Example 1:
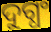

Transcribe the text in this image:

ଦୁଗ୍ଧଂ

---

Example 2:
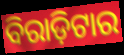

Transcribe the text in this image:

ବିରାଡ଼ିଟାର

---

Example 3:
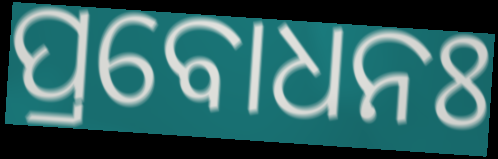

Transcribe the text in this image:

ପ୍ରବୋଧନଃ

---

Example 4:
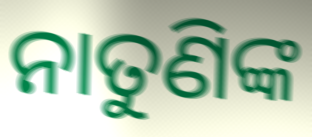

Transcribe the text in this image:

ନାତୁଣିଙ୍କ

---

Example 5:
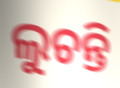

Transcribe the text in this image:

ଲୁଚନ୍ତି